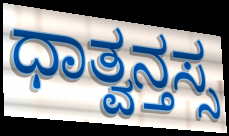
ಧಾತ್ವನ್ತಸ್ಸ